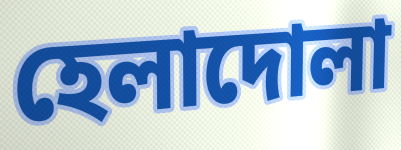
হেলাদোলা